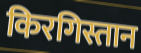
किरगिस्तान